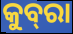
କୁବ୍‍ରା